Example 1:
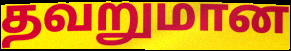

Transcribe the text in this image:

தவறுமான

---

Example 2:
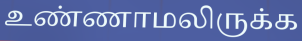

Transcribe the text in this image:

உண்ணாமலிருக்க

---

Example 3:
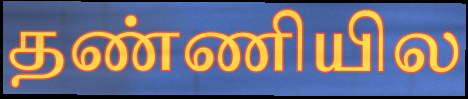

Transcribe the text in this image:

தண்ணியில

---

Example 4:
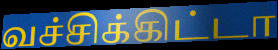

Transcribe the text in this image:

வச்சிக்கிட்டா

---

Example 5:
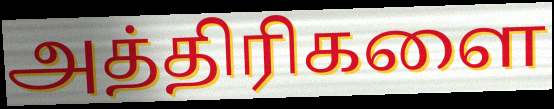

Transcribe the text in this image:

அத்திரிகளை